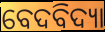
ବେଦବିଦ୍ୟା